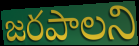
జరపాలని